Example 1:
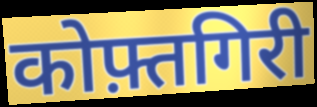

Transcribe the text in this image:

कोफ़्तगिरी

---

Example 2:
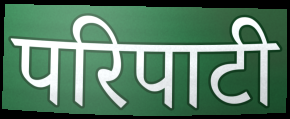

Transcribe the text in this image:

परिपाटी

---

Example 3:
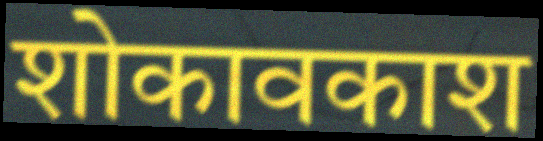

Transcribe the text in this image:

शोकावकाश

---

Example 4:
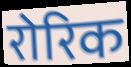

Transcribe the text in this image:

रोरिक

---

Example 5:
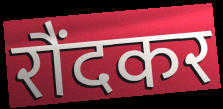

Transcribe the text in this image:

रौंदकर